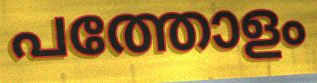
പത്തോളം